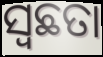
ସ୍ବଛତା